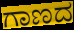
ಗಾಣದ